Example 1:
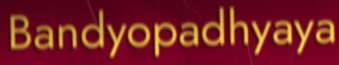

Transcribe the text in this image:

Bandyopadhyaya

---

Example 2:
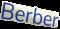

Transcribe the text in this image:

Berber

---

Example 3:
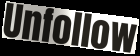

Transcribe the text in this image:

Unfollow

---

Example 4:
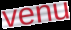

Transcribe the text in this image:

venu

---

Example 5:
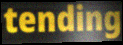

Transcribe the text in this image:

tending